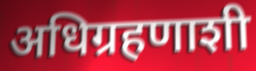
अधिग्रहणाशी